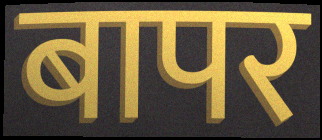
बापर